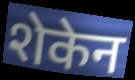
शेकेन